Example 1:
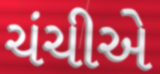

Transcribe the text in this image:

ચંચીએ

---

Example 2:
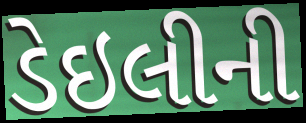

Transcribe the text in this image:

ડેઇલીની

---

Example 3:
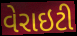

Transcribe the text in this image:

વેરાઇટી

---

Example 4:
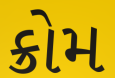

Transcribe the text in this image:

ક્રોમ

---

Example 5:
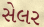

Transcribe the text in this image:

સેલર